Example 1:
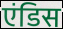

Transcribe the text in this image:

एंडिस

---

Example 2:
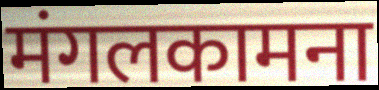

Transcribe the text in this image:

मंगलकामना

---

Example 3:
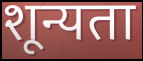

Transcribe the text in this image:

शून्‍यता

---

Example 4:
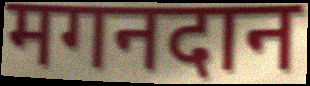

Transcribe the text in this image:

मगनदान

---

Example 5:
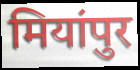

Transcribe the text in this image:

मियांपुर